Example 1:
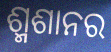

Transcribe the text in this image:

ଶ୍ମଶାନର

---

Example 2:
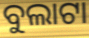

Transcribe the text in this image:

ବୁଲାଟା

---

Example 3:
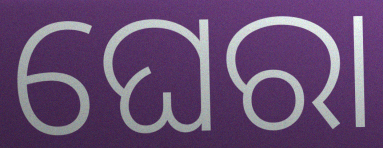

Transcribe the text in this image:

ଘେରା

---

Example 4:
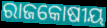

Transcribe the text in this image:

ରାଜକୋଷୀୟ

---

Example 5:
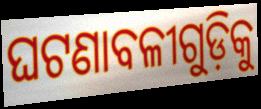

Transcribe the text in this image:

ଘଟଣାବଳୀଗୁଡ଼ିକୁ